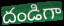
దండిగా